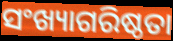
ସଂଖ୍ୟାଗରିଷ୍ଠତା